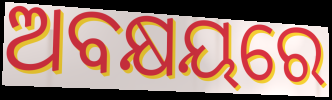
ଅବକ୍ଷୟରେ